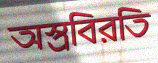
অস্ত্রবিরতি